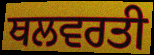
ਥਲਵਰਤੀ